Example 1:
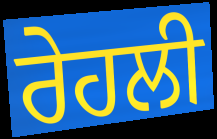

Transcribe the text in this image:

ਰੇਹਲੀ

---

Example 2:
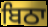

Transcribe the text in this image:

ਬਿਠਾ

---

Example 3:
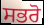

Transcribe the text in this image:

ਸਭਰੋ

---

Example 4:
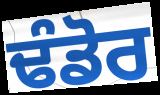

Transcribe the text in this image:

ਢੰਡੋਰ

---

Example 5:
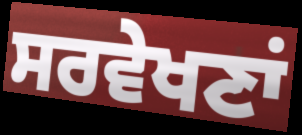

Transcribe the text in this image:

ਸਰਵੇਖਣਾਂ